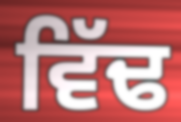
ਵਿੱਢ